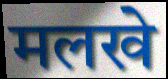
मलखे